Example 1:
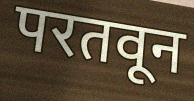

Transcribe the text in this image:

परतवून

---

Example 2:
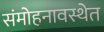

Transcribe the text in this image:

संमोहनावस्थेत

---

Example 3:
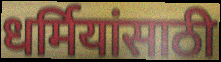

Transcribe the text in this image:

धर्मियांसाठी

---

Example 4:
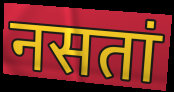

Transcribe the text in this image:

नसतां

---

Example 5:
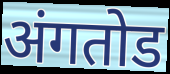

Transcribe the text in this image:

अंगतोड